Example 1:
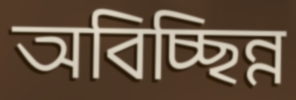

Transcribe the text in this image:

অবিচ্ছিন্ন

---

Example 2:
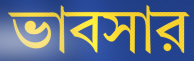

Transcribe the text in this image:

ভাবসার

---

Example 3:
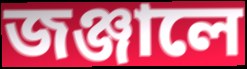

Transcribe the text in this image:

জঞ্জালে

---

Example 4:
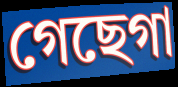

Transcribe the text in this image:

গেছেগা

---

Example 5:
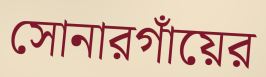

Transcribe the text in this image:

সোনারগাঁয়ের